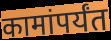
कामांपर्यंत